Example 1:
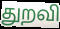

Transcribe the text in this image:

துறவி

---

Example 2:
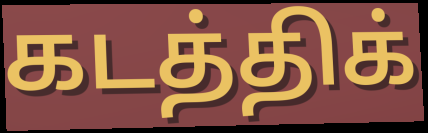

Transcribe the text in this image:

கடத்திக்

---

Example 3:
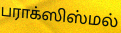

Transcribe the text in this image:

பராக்ஸிஸ்மல்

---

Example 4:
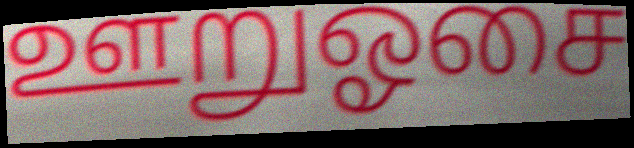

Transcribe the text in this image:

ஊறுஓசை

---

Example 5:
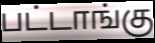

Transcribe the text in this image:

பட்டாங்கு